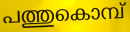
പത്തുകൊമ്പ്